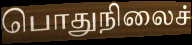
பொதுநிலைச்